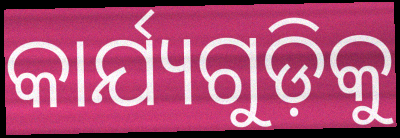
କାର୍ଯ୍ୟଗୁଡ଼ିକୁ